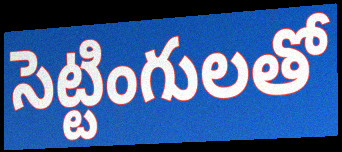
సెట్టింగులతో